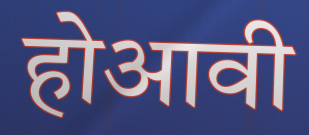
होआवी